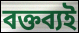
বক্তব্যই